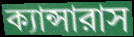
ক্যান্সারাস